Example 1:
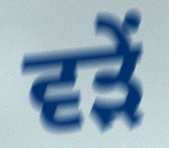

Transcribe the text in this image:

ਵੜੇਂ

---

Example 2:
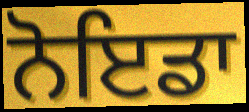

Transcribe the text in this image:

ਨੋਇਡਾ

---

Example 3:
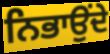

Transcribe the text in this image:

ਨਿਭਾਉਂਦੇ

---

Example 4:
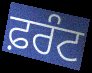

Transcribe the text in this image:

ਫ਼ਰੰਟ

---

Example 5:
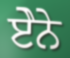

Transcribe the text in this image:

ਏੇਨੇ